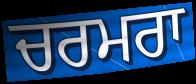
ਚਰਮਰਾ